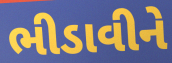
ભીડાવીને